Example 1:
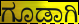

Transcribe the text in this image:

ಗೂಡಾಗಿ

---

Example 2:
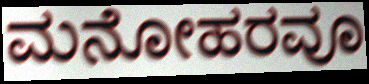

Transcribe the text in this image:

ಮನೋಹರವೂ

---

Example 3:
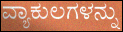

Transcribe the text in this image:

ವ್ಯಾಕುಲಗಳನ್ನು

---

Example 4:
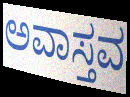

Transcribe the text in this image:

ಅವಾಸ್ತವ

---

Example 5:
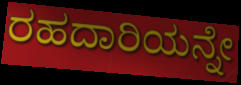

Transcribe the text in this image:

ರಹದಾರಿಯನ್ನೇ